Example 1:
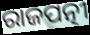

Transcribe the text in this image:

ରାଜପତ୍ନୀ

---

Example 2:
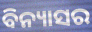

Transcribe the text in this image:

ବିନ୍ୟାସର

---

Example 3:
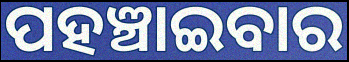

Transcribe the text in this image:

ପହଞ୍ଚାଇବାର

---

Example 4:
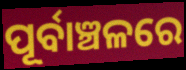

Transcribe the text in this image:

ପୂର୍ବାଞ୍ଚଳରେ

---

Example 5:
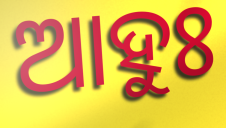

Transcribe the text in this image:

ଆହୁଃ